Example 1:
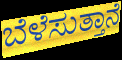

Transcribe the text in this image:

ಬೆಳೆಸುತ್ತಾನೆ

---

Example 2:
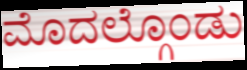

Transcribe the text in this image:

ಮೊದಲ್ಗೊಂಡು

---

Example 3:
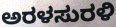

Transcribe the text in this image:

ಅರಳಸುರಳಿ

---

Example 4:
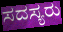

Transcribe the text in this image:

ಸದಸ್ಯರು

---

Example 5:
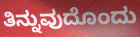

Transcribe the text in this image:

ತಿನ್ನುವುದೊಂದು